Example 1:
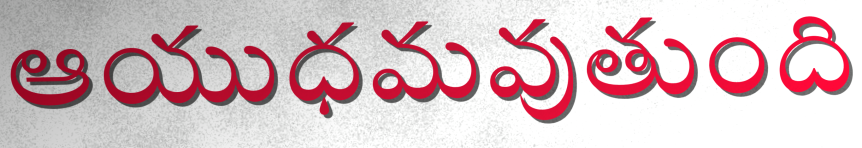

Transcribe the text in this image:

ఆయుధమవుతుంది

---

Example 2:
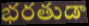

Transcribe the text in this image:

భరతుడా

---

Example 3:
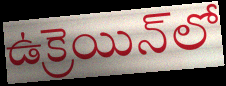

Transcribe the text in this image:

ఉక్రెయిన్‌లో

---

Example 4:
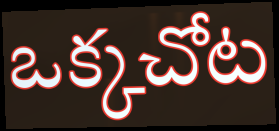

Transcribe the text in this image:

ఒక్కచోట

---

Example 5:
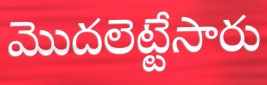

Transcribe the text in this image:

మొదలెట్టేసారు